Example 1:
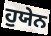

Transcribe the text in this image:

ਹੁਯੇਨ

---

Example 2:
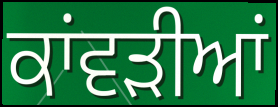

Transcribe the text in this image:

ਕਾਂਵੜੀਆਂ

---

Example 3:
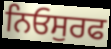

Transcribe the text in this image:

ਨਿਓਸੁਰਫ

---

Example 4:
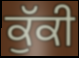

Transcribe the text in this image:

ਕੁੱਕੀ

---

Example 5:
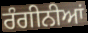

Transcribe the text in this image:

ਰੰਗੀਨੀਆਂ